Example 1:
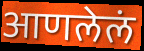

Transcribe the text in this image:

आणलेलं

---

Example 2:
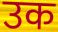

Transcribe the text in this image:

उक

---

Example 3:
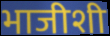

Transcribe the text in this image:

भाजीशी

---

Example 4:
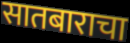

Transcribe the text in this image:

सातबाराचा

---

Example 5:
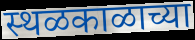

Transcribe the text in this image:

स्थळकाळाच्या